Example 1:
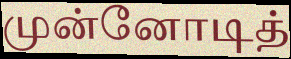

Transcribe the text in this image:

முன்னோடித்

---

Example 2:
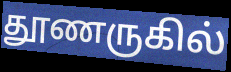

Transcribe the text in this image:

தூணருகில்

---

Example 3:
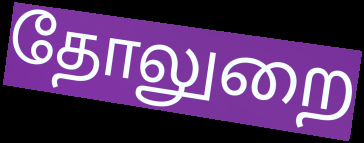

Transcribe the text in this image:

தோலுறை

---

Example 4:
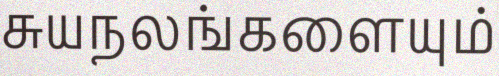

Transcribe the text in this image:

சுயநலங்களையும்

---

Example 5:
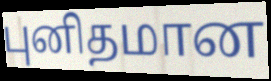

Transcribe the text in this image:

புனிதமான